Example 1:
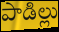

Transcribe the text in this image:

పాడిల్లు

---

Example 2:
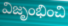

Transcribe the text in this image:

విజృంభించి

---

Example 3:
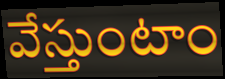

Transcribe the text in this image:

వేస్తుంటాం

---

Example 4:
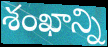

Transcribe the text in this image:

శంఖాన్ని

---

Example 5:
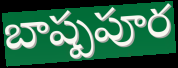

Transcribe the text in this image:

బాష్పపూర